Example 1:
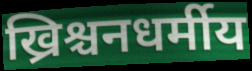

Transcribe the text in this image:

ख्रिश्चनधर्मीय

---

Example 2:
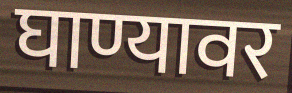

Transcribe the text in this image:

घाण्यावर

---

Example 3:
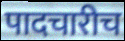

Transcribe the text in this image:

पादचारीच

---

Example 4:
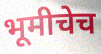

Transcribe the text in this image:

भूमीचेच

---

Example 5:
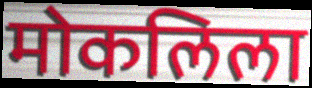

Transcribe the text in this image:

मोकलिला